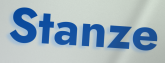
Stanze